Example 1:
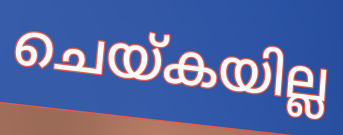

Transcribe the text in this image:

ചെയ്കയില്ല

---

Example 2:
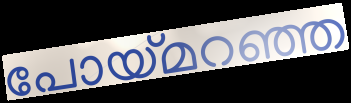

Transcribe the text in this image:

പോയ്മറഞ്ഞ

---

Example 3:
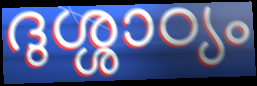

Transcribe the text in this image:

ദുശ്ശാഠ്യം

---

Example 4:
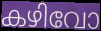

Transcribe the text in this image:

കഴിവോ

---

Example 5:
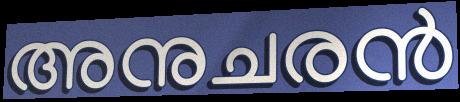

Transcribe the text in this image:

അനുചരൻ